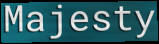
Majesty